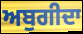
ਅਬੁਗੀਦਾ